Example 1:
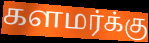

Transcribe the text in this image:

களமர்க்கு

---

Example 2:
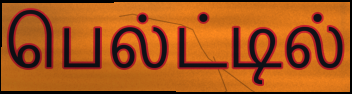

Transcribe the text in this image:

பெல்ட்டில்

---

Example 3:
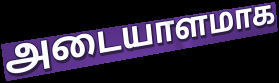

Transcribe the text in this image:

அடையாளமாக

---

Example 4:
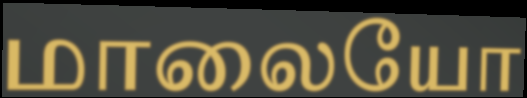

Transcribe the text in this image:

மாலையோ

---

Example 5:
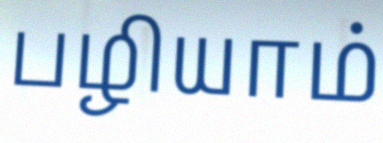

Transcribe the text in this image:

பழியாம்